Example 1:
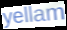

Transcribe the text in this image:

yellam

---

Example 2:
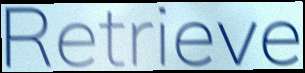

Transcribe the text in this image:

Retrieve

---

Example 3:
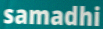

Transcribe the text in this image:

samadhi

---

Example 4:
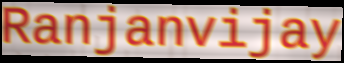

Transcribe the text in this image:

Ranjanvijay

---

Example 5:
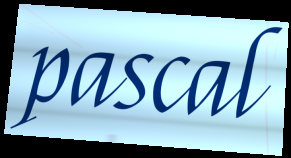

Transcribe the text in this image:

pascal